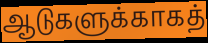
ஆடுகளுக்காகத்